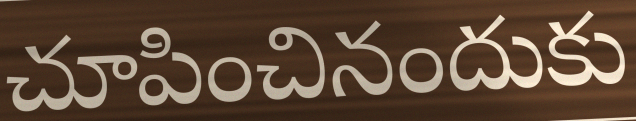
చూపించినందుకు